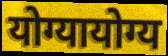
योग्यायोग्य